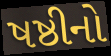
ષષ્ઠીનો